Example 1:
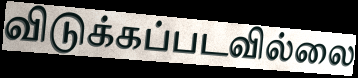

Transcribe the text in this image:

விடுக்கப்படவில்லை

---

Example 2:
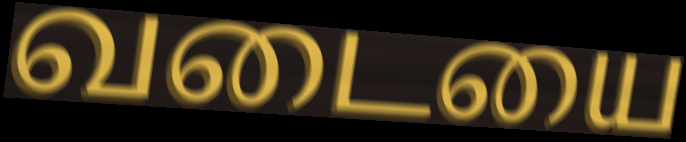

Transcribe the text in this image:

வடையை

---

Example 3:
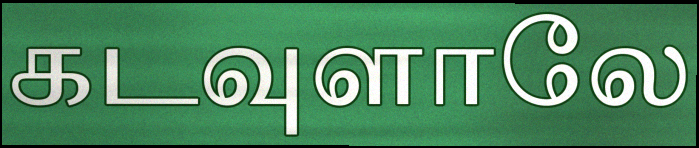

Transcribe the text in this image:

கடவுளாலே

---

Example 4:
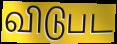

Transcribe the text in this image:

விடுபட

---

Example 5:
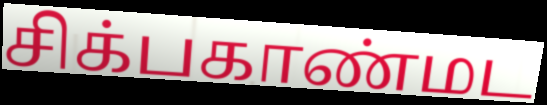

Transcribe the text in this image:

சிக்பகாண்மட